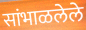
सांभाळलेले